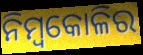
ନିମ୍ବକୋଳିର